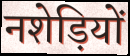
नशेड़ियों